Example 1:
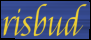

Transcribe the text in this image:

risbud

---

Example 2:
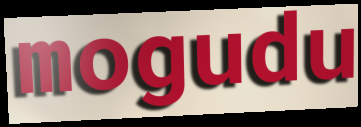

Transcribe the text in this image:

mogudu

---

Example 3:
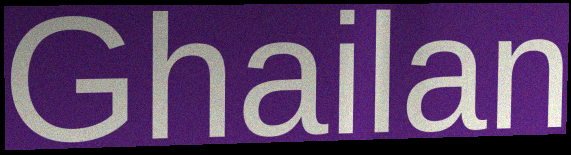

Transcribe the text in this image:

Ghailan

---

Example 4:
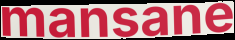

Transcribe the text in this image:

mansane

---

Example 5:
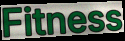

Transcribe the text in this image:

Fitness